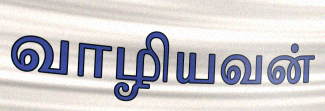
வாழியவன்